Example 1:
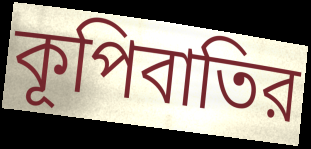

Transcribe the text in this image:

কূপিবাতির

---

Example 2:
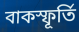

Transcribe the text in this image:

বাকস্ফূর্তি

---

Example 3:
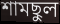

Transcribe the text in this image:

শামছুল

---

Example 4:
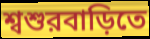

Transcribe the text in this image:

শ্বশুরবাড়িতে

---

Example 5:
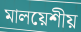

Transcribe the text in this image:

মালয়েশীয়